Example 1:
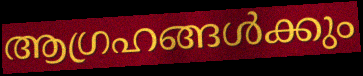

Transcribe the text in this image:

ആഗ്രഹങ്ങൾക്കും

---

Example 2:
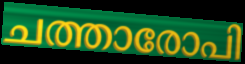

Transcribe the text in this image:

ചത്താരോപി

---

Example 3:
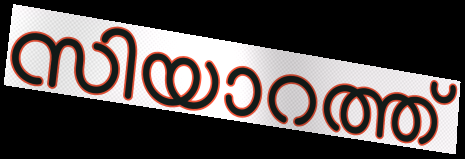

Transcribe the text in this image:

സിയാറത്ത്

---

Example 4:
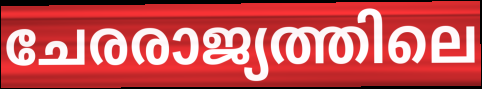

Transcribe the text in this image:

ചേരരാജ്യത്തിലെ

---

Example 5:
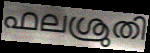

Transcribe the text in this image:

ഫലശ്രുതി